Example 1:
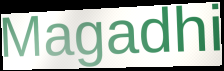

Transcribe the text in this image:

Magadhi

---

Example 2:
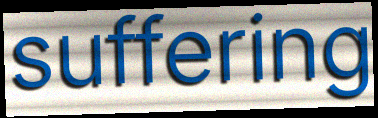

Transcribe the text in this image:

suffering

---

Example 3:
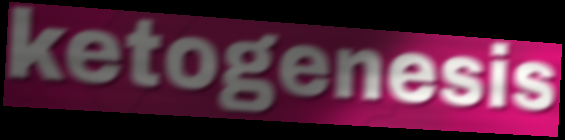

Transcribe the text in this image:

ketogenesis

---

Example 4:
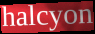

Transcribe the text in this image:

halcyon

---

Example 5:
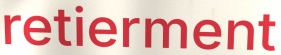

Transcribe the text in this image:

retierment